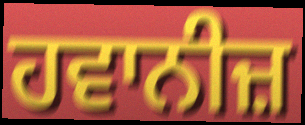
ਹਵਾਨੀਜ਼